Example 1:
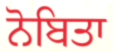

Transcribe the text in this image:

ਨੋਬਿਤਾ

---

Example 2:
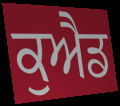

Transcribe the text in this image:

ਕੁਐਡ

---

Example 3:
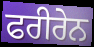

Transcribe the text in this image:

ਫਰੀਰੇਨ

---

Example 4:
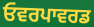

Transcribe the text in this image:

ਓਵਰਪਾਵਰਡ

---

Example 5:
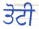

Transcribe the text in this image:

ਤੋਟੀ